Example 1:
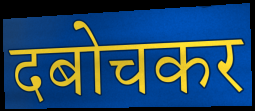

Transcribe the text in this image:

दबोचकर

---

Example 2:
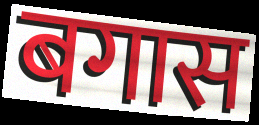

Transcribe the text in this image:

बगास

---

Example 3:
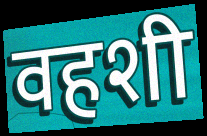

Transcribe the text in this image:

वहशी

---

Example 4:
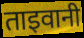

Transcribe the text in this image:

ताइवानी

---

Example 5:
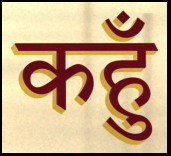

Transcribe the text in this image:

कहुँ